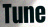
Tune